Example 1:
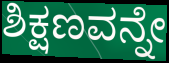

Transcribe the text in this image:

ಶಿಕ್ಷಣವನ್ನೇ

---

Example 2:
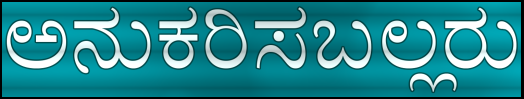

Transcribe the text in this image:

ಅನುಕರಿಸಬಲ್ಲರು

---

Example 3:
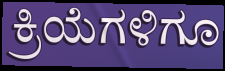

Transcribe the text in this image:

ಕ್ರಿಯೆಗಳಿಗೂ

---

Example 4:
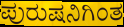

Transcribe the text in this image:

ಪುರುಷನಿಗಿಂತ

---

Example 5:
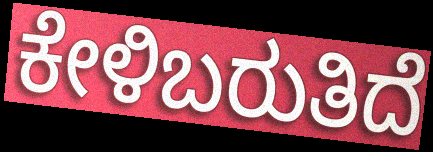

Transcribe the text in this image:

ಕೇಳಿಬರುತಿದೆ